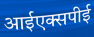
आईएक्सपीई